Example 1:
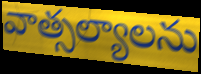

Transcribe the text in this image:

వాత్సల్యాలను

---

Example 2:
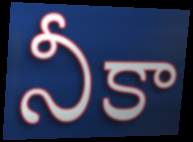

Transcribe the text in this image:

నీకా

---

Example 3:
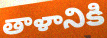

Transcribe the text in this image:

తాళానికి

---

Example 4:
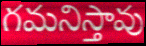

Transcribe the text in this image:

గమనిస్తావు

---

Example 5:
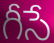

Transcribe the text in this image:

గీసే